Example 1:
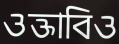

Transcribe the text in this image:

ওক্তাবিও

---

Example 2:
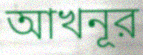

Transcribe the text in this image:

আখনূর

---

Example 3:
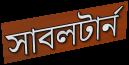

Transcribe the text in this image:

সাবলটার্ন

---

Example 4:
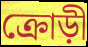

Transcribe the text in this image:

ক্রোড়ী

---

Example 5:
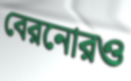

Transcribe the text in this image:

বেরনোরও